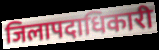
जिलापदाधिकारी